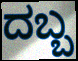
ದಬ್ಬ